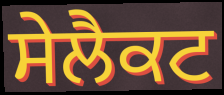
ਸੇਲੈਕਟ